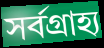
সর্বগ্রাহ্য